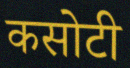
कसोटी